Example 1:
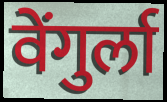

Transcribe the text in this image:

वेंगुर्ला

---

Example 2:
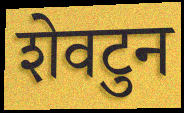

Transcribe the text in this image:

शेवटुन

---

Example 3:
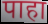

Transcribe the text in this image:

पाहा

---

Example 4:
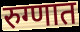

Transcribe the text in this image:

रुग्णात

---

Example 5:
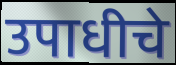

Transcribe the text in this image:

उपाधीचे